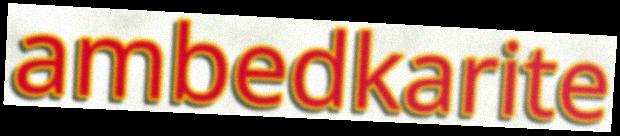
ambedkarite